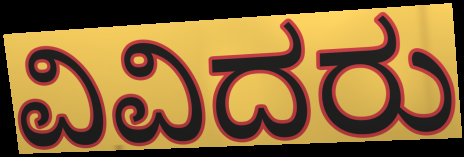
ವಿವಿದರು